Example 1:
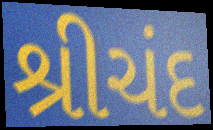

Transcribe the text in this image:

શ્રીચંદ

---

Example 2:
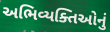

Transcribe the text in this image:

અભિવ્યક્તિઓનું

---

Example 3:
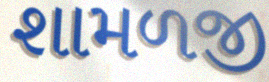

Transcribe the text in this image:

શામળજી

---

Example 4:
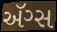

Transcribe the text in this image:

ઍગ્સ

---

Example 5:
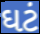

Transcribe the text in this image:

ઘટં